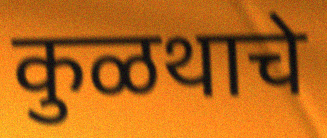
कुळथाचे